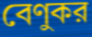
বেণুকর